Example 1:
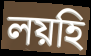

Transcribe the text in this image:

লয়হি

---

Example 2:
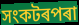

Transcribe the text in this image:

সংকটৰপৰা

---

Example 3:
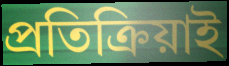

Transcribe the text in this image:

প্ৰতিক্ৰিয়াই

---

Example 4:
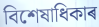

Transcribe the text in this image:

বিশেষাধিকাৰ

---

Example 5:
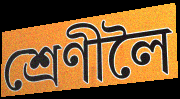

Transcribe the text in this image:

শ্ৰেণীলৈ